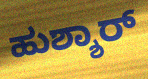
ಹುಶ್ಶಾರ್